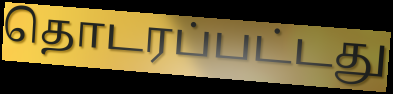
தொடரப்பட்டது